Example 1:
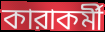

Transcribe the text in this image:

কারাকর্মী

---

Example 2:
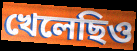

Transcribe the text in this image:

খেলেছিও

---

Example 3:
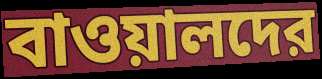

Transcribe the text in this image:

বাওয়ালদের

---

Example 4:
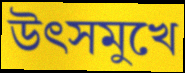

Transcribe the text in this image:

উৎসমুখে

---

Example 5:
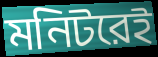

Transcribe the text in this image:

মনিটরেই